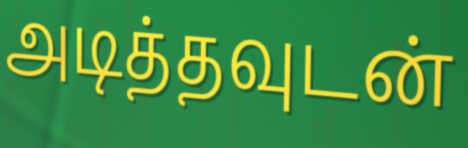
அடித்தவுடன்